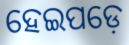
ହେଇପଡ଼େ